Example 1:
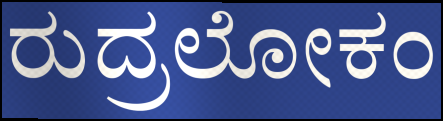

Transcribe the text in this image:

ರುದ್ರಲೋಕಂ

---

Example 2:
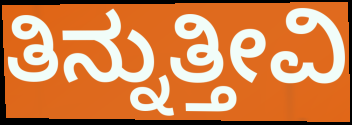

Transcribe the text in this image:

ತಿನ್ನುತ್ತೀವಿ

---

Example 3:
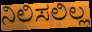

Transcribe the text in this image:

ನಿಲಿಸಲಿಲ್ಲ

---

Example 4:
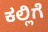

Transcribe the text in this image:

ಕಲ್ಲಿಗೆ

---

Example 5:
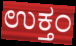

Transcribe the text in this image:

ಉಕ್ತಂ